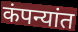
कंपन्यांत